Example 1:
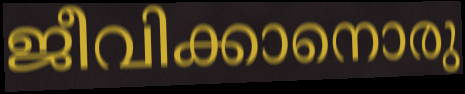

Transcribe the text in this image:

ജീവിക്കാനൊരു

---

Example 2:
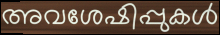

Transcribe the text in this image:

അവശേഷിപ്പുകൾ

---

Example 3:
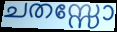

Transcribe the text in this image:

ചതസ്സോ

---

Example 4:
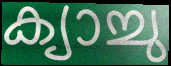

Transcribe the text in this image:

ക്യാച്ചു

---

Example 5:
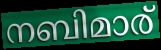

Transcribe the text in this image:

നബിമാര്